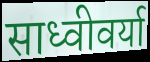
साध्वीवर्या